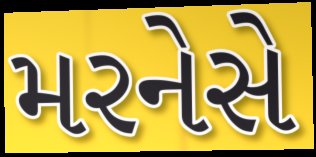
મરનેસે